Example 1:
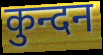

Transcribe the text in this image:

कुन्‍दन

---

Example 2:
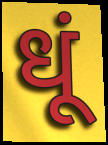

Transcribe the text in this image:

धूं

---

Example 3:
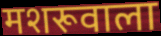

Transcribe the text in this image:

मशरूवाला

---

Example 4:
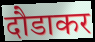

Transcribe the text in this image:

दौडाकर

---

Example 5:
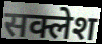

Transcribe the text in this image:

सक्लेश